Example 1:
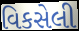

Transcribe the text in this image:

વિકસેલી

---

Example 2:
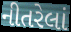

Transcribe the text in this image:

નીતરેલાં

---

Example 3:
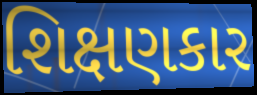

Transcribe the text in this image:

શિક્ષણકાર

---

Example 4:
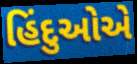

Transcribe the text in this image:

હિંદુઓએ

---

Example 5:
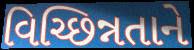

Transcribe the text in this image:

વિચ્છિન્નતાને